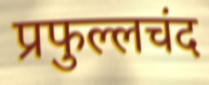
प्रफुल्लचंद